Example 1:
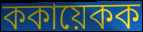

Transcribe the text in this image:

ককায়েকক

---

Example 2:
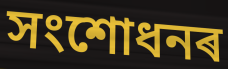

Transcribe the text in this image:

সংশোধনৰ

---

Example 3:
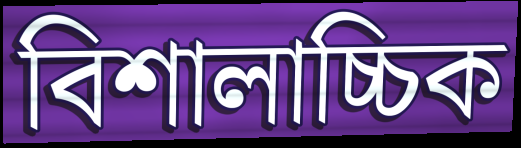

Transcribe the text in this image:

বিশালাচ্চিক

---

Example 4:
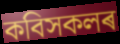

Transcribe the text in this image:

কবিসকলৰ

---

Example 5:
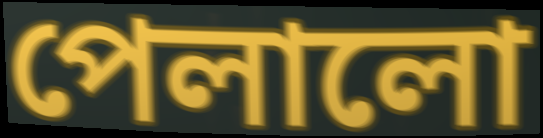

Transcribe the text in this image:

পেলালো